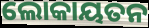
ଲୋକାୟତନ